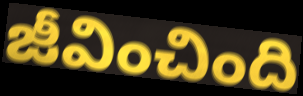
జీవించింది